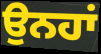
ਉਨਹਾਂ